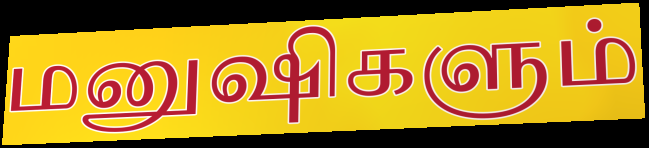
மனுஷிகளும்